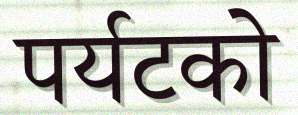
पर्यटको